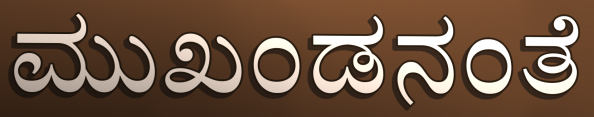
ಮುಖಂಡನಂತೆ